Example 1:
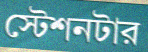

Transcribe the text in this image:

স্টেশনটার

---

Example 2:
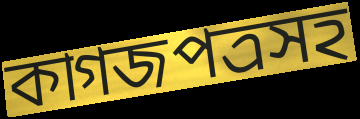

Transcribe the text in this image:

কাগজপত্রসহ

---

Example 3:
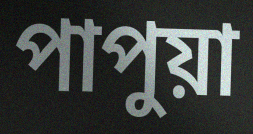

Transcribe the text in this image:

পাপুয়া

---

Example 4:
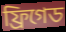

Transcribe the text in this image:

ফ্রিগেড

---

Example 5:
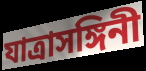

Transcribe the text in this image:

যাত্রাসঙ্গিনী